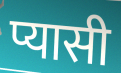
प्यासी